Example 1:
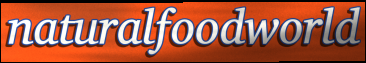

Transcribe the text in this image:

naturalfoodworld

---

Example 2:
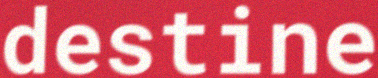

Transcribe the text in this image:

destine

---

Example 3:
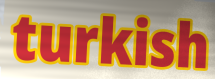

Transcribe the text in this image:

turkish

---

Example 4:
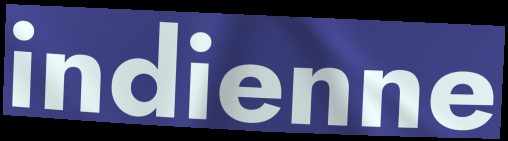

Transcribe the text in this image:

indienne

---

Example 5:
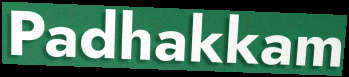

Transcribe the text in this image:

Padhakkam